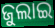
ଜୁଲାଇ